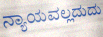
ನ್ಯಾಯವಲ್ಲದುದು